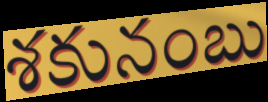
శకునంబు